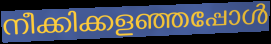
നീക്കിക്കളഞ്ഞപ്പോൾ